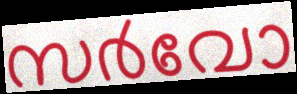
സർവോ